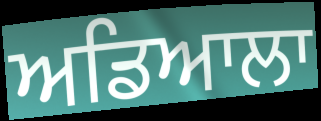
ਅਡਿਆਲਾ